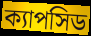
ক্যাপসিড